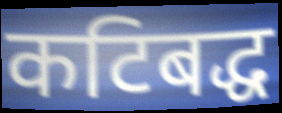
कटिबद्ध